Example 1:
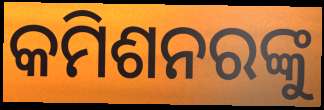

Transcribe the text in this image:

କମିଶନରଙ୍କୁ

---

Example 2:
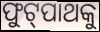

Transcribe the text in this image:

ଫୁଟ୍‌ପାଥକୁ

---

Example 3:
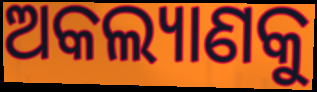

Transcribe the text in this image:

ଅକଲ୍ୟାଣକୁ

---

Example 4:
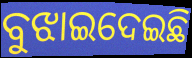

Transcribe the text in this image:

ବୁଝାଇଦେଇଛି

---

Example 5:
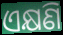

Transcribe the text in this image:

ଏକ୍ଷଣି